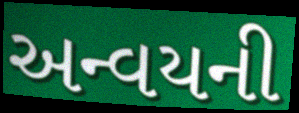
અન્વયની